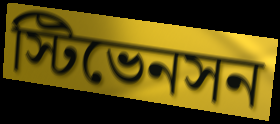
স্টিভেনসন